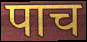
पाच